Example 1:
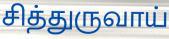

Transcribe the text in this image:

சித்துருவாய்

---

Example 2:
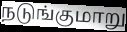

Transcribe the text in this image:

நடுங்குமாறு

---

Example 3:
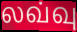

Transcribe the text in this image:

லவ்வு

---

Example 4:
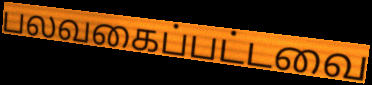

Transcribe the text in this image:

பலவகைப்பட்டவை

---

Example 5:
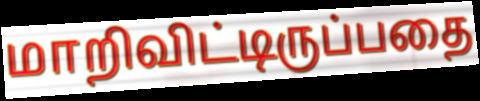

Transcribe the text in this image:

மாறிவிட்டிருப்பதை